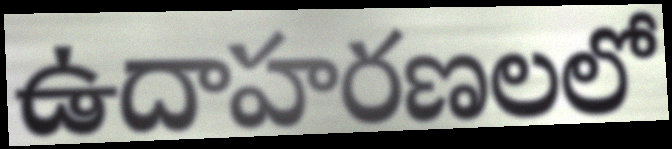
ఉదాహరణలలో